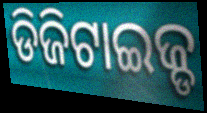
ଡିଜିଟାଇଜ୍ଡ